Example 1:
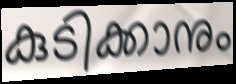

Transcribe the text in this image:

കുടിക്കാനും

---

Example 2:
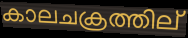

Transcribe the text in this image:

കാലചക്രത്തില്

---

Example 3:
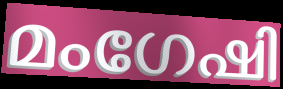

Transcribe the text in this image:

മംഗേഷി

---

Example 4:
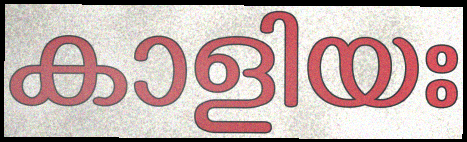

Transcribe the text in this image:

കാളിയഃ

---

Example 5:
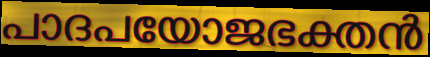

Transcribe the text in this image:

പാദപയോജഭക്തൻ